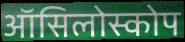
ऑसिलोस्कोप